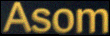
Asom